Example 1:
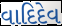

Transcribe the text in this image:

વાદિદેવ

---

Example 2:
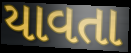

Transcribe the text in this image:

યાવતા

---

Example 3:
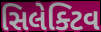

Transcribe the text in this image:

સિલેક્ટિવ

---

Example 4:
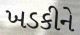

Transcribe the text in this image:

ખડકીને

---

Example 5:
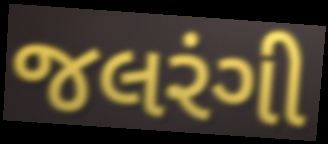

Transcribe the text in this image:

જલરંગી